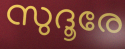
സുദൂരേ